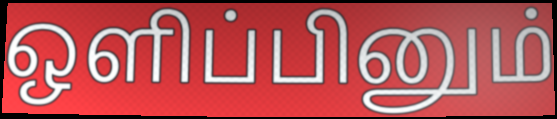
ஒளிப்பினும்